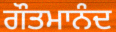
ਗੌਤਮਾਨੰਦ